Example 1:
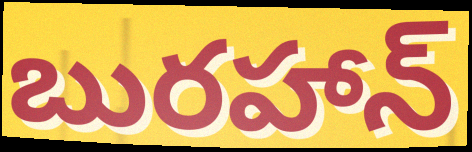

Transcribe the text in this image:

బురహాన్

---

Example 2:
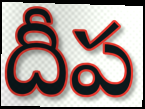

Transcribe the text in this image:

దీప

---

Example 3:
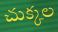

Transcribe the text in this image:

చుక్కల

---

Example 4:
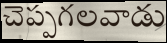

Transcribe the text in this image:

చెప్పగలవాడు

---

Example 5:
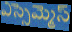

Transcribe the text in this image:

ఎస్సెమ్మెస్